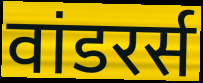
वांडरर्स